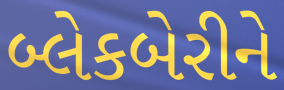
બ્લેકબેરીને